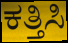
ಕತ್ತಿಸಿ